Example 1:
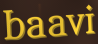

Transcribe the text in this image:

baavi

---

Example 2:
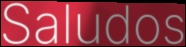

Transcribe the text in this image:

Saludos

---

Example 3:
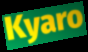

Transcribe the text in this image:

Kyaro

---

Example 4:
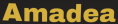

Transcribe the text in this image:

Amadea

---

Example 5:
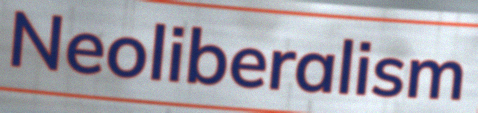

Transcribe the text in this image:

Neoliberalism